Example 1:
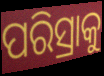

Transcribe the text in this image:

ପରିସ୍ରାକୁ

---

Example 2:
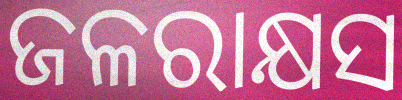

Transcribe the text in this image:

ଜଳରାକ୍ଷସ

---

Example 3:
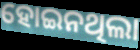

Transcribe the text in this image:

ହୋଇନଥିଲା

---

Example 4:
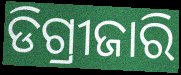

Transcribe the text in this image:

ଡିଗ୍ରୀଜାରି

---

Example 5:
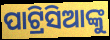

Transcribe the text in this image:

ପାଟ୍ରିସିଆଙ୍କୁ